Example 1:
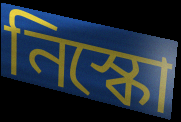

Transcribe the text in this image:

নিস্কো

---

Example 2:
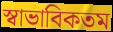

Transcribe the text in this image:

স্বাভাবিকতম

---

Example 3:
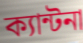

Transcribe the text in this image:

ক্যান্টনা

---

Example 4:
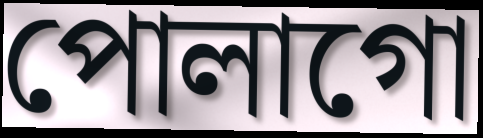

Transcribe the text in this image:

পোলাগো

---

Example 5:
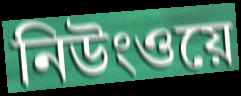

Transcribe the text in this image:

নিউংওয়ে